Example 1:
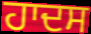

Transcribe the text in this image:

ਹਾਦਸ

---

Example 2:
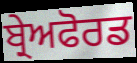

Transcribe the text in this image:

ਬ੍ਰੇਅਫੋਰਡ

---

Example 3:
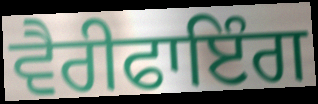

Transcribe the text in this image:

ਵੈਰੀਫਾਇੰਗ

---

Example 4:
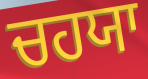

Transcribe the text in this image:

ਚਹਯਾ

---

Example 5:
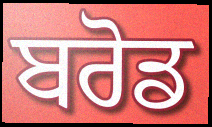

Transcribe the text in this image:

ਬਰੋਡ